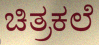
ಚಿತ್ರಕಲೆ